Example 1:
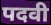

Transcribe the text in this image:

पदवी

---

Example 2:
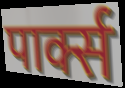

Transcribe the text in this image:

पार्क्स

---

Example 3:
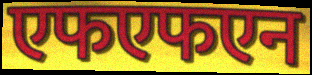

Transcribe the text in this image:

एफएफएन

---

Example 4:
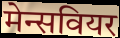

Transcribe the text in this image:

मेन्सवियर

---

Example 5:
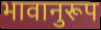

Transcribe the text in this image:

भावानुरूप